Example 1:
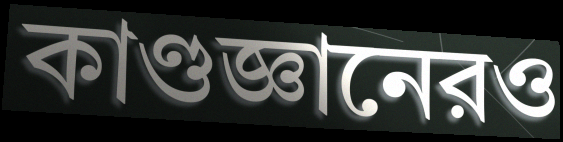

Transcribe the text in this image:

কাণ্ডজ্ঞানেরও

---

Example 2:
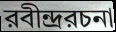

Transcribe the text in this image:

রবীন্দ্ররচনা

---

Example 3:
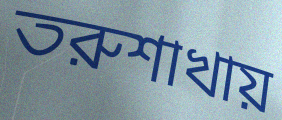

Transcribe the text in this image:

তরুশাখায়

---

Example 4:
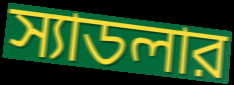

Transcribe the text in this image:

স্যাডলার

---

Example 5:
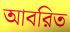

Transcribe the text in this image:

আবরিত